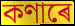
কণাৰে